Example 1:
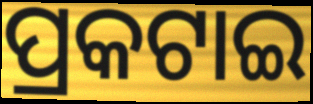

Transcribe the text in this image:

ପ୍ରକଟାଇ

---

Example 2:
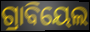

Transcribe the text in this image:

ଗ୍ରାବିୟେଲ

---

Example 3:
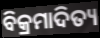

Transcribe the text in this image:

ବିକ୍ରମାଦିତ୍ୟ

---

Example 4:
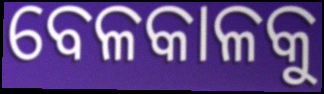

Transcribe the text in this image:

ବେଳକାଳକୁ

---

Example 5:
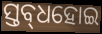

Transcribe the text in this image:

ସ୍ତବ୍‌ଧହୋଇ